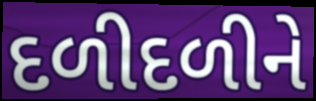
દળીદળીને